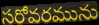
సరోవరమును